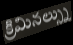
క్రిమినల్స్ను